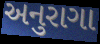
અનુરાગા